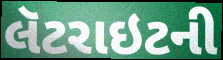
લૅટરાઇટની